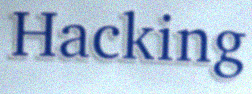
Hacking